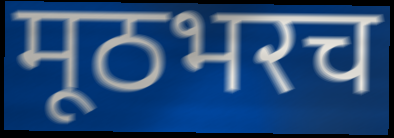
मूठभरच